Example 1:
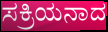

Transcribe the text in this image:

ಸಕ್ರಿಯನಾದ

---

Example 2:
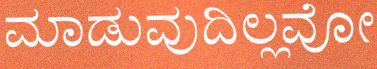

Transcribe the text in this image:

ಮಾಡುವುದಿಲ್ಲವೋ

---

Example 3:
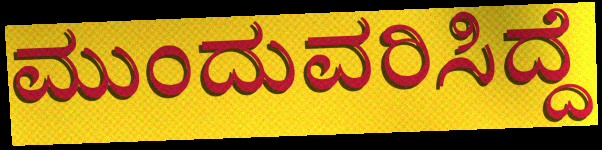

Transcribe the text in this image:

ಮುಂದುವರಿಸಿದ್ದೆ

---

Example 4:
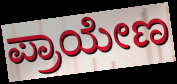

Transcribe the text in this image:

ಪ್ರಾಯೇಣ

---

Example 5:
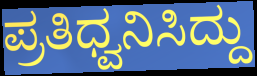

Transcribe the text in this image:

ಪ್ರತಿಧ್ವನಿಸಿದ್ದು